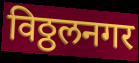
विठ्ठलनगर